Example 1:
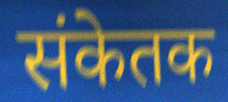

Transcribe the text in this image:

संकेतक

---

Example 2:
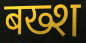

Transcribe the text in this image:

बख्श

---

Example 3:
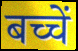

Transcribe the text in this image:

बच्चें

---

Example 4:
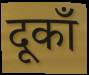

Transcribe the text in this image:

दूकाँ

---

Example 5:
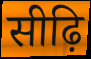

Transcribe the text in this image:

सीढ़ि